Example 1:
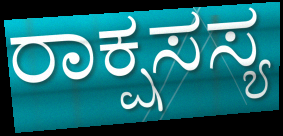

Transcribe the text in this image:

ರಾಕ್ಷಸಸ್ಯ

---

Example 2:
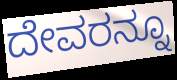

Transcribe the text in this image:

ದೇವರನ್ನೂ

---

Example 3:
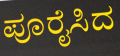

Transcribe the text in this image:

ಪೂರೈಸಿದ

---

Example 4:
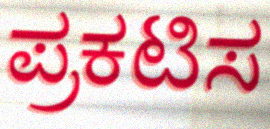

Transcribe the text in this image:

ಪ್ರಕಟಿಸ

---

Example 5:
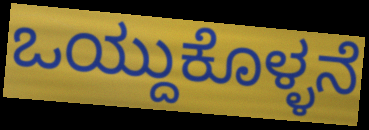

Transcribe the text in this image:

ಒಯ್ದುಕೊಳ್ಳನೆ